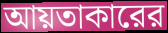
আয়তাকারের